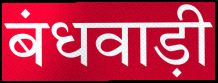
बंधवाड़ी